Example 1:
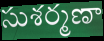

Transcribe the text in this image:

సుశర్మణా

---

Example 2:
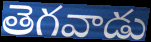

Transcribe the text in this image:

తెగవాడు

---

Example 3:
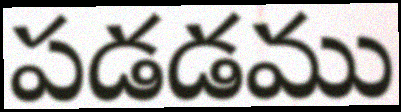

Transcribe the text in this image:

పడడము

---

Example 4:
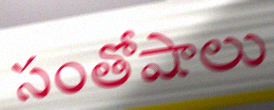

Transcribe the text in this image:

సంతోషాలు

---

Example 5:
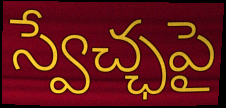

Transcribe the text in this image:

స్వేచ్ఛపై